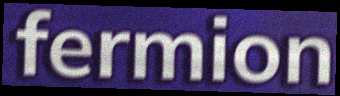
fermion